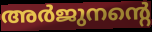
അർജുനന്റെ